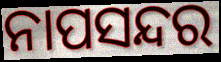
ନାପସନ୍ଦର